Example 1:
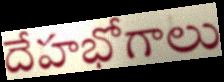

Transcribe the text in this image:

దేహభోగాలు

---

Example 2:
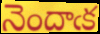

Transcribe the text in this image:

నెందాఁక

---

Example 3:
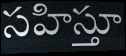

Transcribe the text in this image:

సహిస్తూ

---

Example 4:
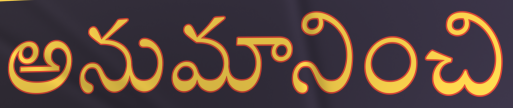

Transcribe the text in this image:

అనుమానించి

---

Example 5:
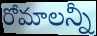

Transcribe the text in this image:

రోమాలన్నీ